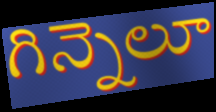
గిన్నెలూ